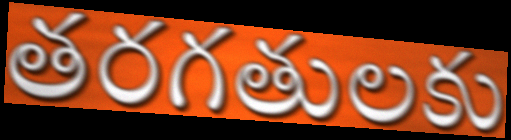
తరగతులకు